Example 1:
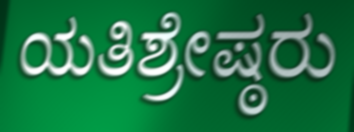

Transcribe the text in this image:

ಯತಿಶ್ರೇಷ್ಠರು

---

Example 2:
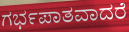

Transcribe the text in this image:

ಗರ್ಭಪಾತವಾದರೆ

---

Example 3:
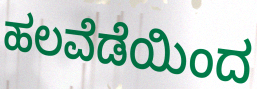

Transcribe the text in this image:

ಹಲವೆಡೆಯಿಂದ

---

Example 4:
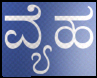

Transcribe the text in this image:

ವ್ಯೆಹ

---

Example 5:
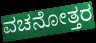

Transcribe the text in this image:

ವಚನೋತ್ತರ